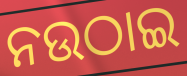
ନଉଠାଇ